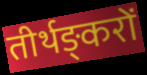
तीर्थङ्करों